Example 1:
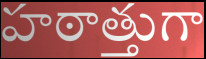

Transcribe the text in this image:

హఠాత్తుగా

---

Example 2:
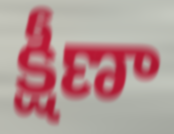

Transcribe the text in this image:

క్షీణా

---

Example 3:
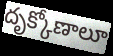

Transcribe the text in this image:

దృక్కోణాలూ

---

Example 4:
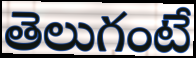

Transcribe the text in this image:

తెలుగంటే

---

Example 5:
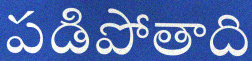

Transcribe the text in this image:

పడిపోతాది